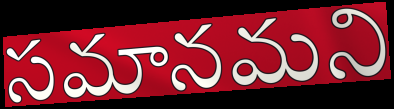
సమానమని